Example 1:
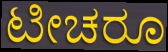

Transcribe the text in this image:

ಟೀಚರೂ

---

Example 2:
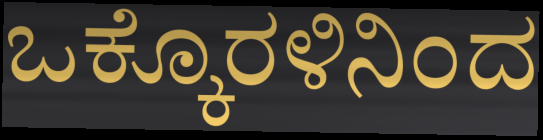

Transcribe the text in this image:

ಒಕ್ಕೊರಳಿನಿಂದ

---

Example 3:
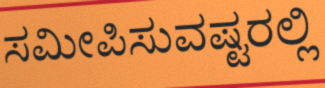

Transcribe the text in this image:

ಸಮೀಪಿಸುವಷ್ಟರಲ್ಲಿ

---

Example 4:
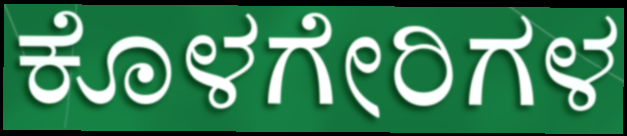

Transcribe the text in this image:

ಕೊಳಗೇರಿಗಳ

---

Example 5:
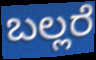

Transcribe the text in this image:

ಬಲ್ಲರೆ